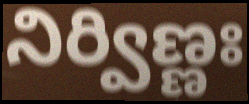
నిర్విణ్ణః